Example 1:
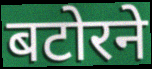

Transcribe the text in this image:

बटोरने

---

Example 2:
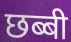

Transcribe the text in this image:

छब्बी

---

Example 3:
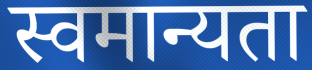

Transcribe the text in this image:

स्वमान्यता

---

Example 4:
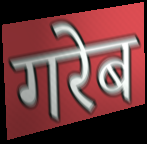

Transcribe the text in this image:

गरेब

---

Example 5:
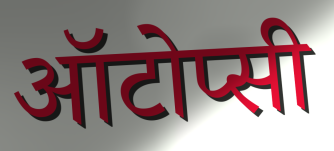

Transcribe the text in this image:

ऑटोप्सी